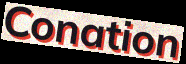
Conation